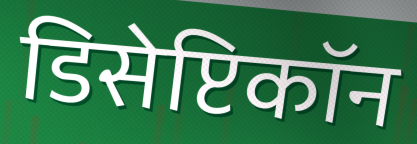
डिसेप्टिकॉन